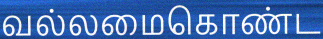
வல்லமைகொண்ட